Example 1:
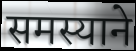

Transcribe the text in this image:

समस्याने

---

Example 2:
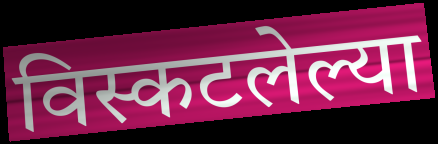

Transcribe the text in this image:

विस्कटलेल्या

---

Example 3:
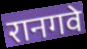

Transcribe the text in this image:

रानगवे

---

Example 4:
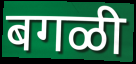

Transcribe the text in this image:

बगळी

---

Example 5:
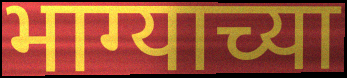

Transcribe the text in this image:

भाग्याच्या